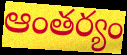
ఆంతర్యం